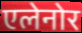
एलेनोर